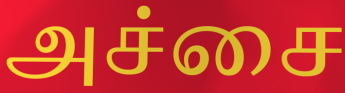
அச்சை